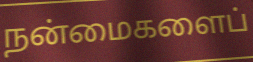
நன்மைகளைப்